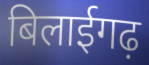
बिलाईगढ़